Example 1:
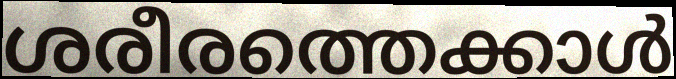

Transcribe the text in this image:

ശരീരത്തെക്കാൾ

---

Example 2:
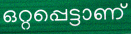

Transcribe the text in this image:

ഒറ്റപ്പെട്ടാണ്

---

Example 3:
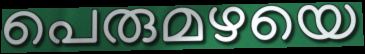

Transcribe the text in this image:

പെരുമഴയെ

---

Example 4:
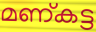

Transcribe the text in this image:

മണ്കട്ട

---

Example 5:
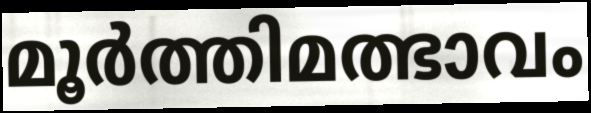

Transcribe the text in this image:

മൂർത്തിമത്ഭാവം